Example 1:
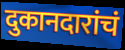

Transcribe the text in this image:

दुकानदारांचं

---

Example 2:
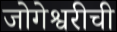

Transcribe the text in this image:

जोगेश्वरीची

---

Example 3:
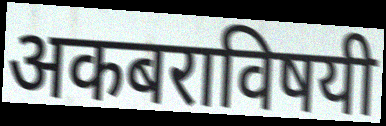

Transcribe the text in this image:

अकबराविषयी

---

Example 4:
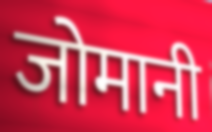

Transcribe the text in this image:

जोमानी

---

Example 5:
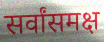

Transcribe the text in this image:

सर्वांसमक्ष